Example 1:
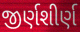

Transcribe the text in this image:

જીર્ણશીર્ણ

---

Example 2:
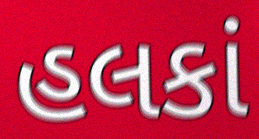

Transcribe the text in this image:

હલકાં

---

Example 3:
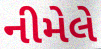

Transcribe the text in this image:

નીમેલે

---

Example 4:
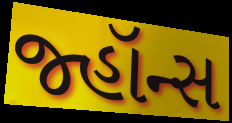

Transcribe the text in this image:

જ્હૉન્સ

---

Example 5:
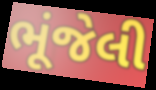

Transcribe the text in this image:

ભૂંજેલી